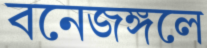
বনেজঙ্গলে